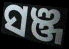
ସଞ୍ଜ